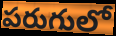
పరుగులో